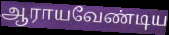
ஆராயவேண்டிய